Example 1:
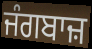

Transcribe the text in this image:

ਜੰਗਬਾਜ਼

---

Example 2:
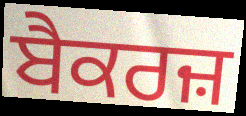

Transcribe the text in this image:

ਬੈਕਰਜ਼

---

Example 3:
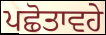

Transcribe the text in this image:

ਪਛੋਤਾਵਹੇ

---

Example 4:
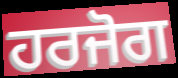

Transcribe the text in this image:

ਹਰਜੋਗ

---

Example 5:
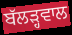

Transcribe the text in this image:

ਬੱਲੜ੍ਹਵਾਲ